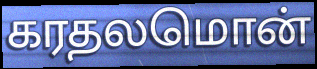
கரதலமொன்